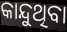
କାନ୍ଦୁଥିବା